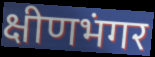
क्षीणभंगर